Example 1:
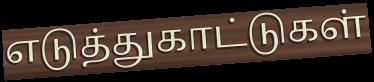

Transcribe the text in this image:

எடுத்துகாட்டுகள்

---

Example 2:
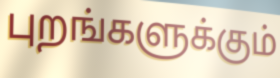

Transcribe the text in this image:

புறங்களுக்கும்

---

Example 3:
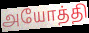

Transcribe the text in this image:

அயோத்தி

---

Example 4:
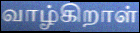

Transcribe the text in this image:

வாழ்கிறாள்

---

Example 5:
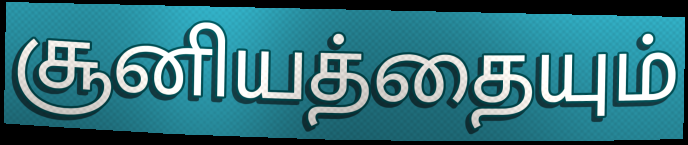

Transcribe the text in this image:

சூனியத்தையும்